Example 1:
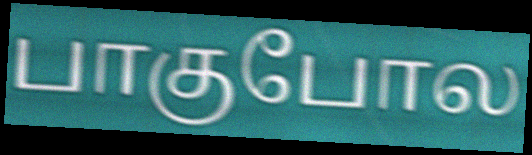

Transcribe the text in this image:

பாகுபோல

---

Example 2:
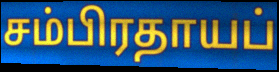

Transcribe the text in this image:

சம்பிரதாயப்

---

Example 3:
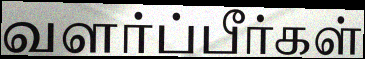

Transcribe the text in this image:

வளர்ப்பீர்கள்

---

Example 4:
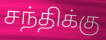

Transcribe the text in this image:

சந்திக்கு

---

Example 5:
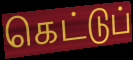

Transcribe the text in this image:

கெட்டுப்